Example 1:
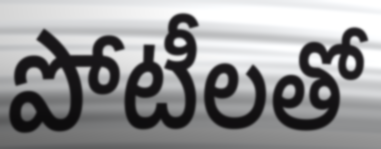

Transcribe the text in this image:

పోటీలతో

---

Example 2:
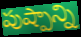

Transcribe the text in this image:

పుష్పాన్ని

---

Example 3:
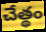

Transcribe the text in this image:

చేత్థం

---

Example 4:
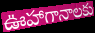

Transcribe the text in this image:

ఊహాగానాలకు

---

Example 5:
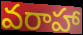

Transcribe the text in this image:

వరాహా